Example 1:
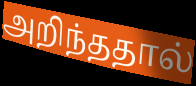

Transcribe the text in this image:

அறிந்ததால்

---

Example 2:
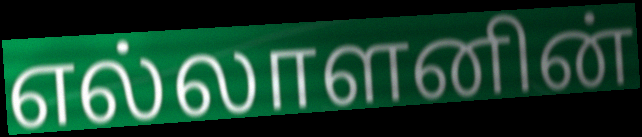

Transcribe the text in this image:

எல்லாளனின்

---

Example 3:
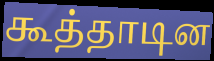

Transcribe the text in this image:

கூத்தாடின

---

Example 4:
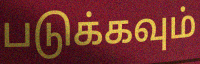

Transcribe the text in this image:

படுக்கவும்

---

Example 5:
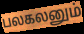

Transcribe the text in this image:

பலகலனும்